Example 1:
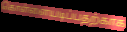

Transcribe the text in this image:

கொள்ளையடிப்பதற்காக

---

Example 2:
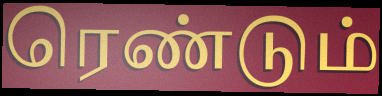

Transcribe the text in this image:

ரெண்டும்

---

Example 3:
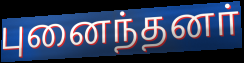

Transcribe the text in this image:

புனைந்தனர்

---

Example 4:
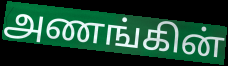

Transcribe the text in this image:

அணங்கின்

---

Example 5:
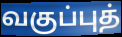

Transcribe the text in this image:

வகுப்புத்